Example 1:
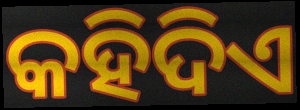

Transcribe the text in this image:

କହିଦିଏ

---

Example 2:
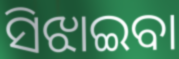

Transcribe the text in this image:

ସିଝାଇବା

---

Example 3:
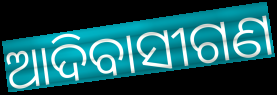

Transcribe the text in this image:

ଆଦିବାସୀଗଣ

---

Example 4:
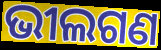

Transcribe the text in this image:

ଭୀଲଗଣ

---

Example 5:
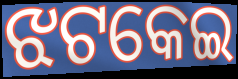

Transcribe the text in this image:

ଝଟକେଇ